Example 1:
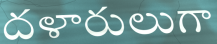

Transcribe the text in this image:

దళారులుగా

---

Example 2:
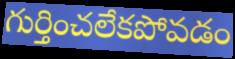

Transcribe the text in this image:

గుర్తించలేకపోవడం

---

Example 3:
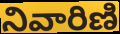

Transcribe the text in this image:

నివారిణి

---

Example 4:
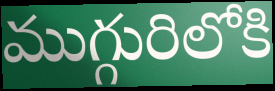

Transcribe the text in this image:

ముగ్గురిలోకి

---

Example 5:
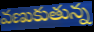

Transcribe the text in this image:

వణుకుతున్న